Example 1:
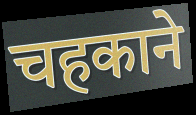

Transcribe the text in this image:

चहकाने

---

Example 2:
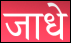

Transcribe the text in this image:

जाधे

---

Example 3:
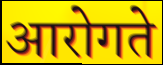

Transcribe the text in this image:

आरोगते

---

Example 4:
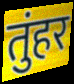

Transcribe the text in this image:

तुंहर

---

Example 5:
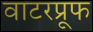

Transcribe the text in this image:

वाटरप्रूफ